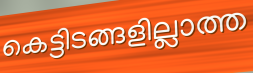
കെട്ടിടങ്ങളില്ലാത്ത